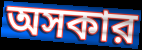
অসকার